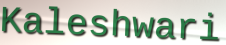
Kaleshwari